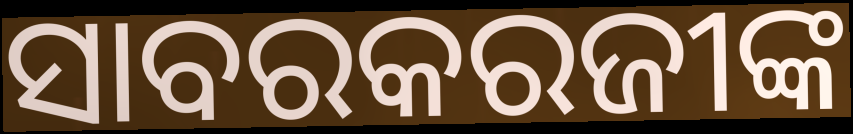
ସାବରକରଜୀଙ୍କ